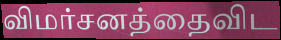
விமர்சனத்தைவிட